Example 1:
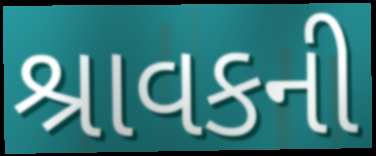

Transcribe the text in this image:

શ્રાવકની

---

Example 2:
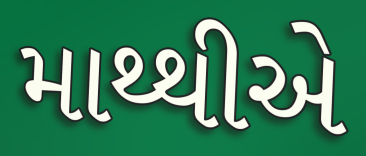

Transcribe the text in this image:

માથ્થીએ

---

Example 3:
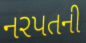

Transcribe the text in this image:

નરપતની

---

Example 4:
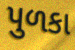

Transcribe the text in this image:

પુળકા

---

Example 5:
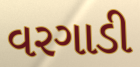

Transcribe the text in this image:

વરગાડી